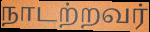
நாடற்றவர்